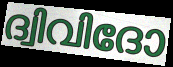
ദ്വിവിദോ